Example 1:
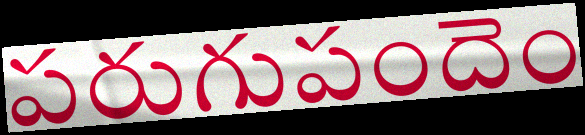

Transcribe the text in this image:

పరుగుపందెం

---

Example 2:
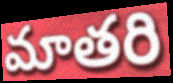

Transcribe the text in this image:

మాతరి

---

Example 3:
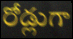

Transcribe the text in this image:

రోడ్లుగా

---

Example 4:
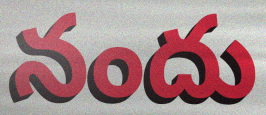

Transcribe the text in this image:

నందు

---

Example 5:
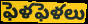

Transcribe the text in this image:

ఫెళఫెళలు